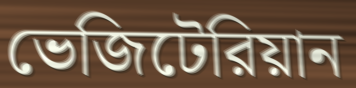
ভেজিটেরিয়ান